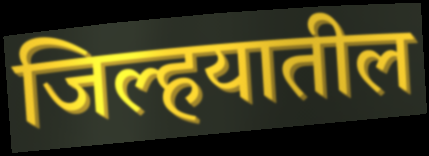
जिल्हयातील